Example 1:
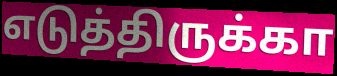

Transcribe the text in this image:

எடுத்திருக்கா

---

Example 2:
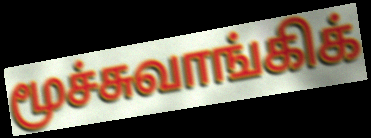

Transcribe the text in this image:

மூச்சுவாங்கிக்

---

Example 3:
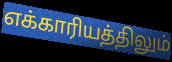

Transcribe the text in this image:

எக்காரியத்திலும்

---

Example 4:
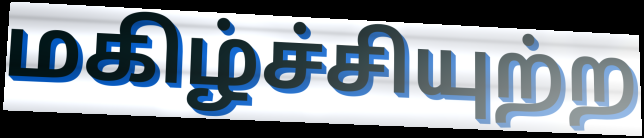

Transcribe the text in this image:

மகிழ்ச்சியுற்ற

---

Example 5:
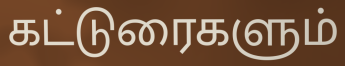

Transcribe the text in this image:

கட்டுரைகளும்